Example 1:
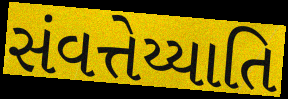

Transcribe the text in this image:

સંવત્તેય્યાતિ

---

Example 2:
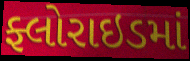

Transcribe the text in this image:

ફ્લોરાઇડમાં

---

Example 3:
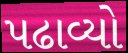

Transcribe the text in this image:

પઢાવ્યો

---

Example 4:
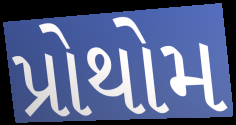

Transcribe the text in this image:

પ્રોથોમ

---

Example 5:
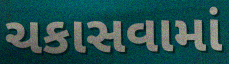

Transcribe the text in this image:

ચકાસવામાં